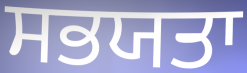
ਸਭਯਤਾ